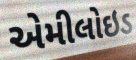
એમીલોઇડ